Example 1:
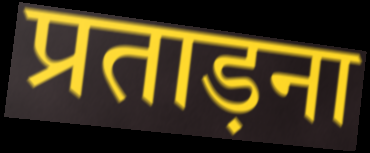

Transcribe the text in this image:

प्रताड़ना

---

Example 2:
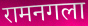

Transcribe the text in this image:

रामनगला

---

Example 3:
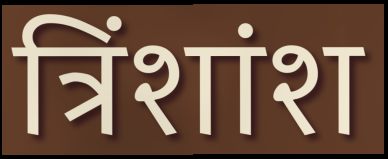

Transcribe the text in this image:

त्रिंशांश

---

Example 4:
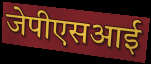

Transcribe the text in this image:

जेपीएसआई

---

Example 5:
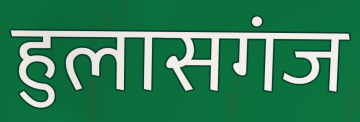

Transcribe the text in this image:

हुलासगंज